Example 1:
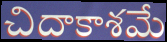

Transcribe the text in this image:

చిదాకాశమే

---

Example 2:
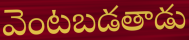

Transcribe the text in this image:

వెంటబడతాడు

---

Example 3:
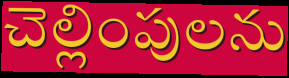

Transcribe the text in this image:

చెల్లింపులను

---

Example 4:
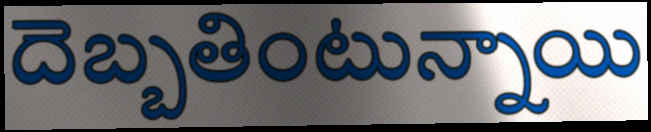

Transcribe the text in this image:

దెబ్బతింటున్నాయి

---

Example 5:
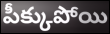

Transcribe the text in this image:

పీక్కుపోయి